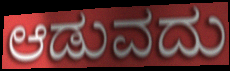
ಆಡುವದು